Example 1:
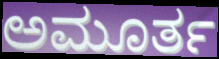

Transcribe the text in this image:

ಅಮೂರ್ತ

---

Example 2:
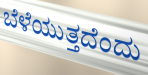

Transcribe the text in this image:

ಬೆಳೆಯುತ್ತದೆಂದು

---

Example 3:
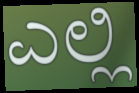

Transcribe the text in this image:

ಎಲ್ಲಿ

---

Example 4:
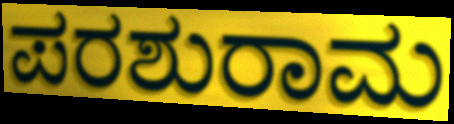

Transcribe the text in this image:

ಪರಶುರಾಮ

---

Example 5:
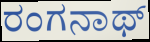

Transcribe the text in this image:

ರಂಗನಾಥ್